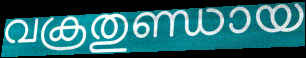
വക്രതുണ്ഡായ